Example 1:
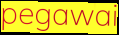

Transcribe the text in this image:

pegawai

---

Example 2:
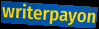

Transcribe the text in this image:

writerpayon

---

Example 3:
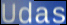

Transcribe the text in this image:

Udas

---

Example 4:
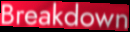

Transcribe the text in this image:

Breakdown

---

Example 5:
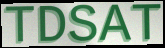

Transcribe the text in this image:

TDSAT